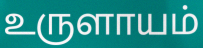
உருளாயம்